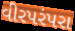
વીરપરંપરા